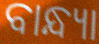
ବାନ୍ଧ୍ୟା